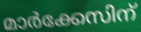
മാർക്കേസിന്